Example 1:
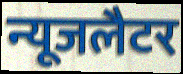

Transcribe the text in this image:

न्यूजलैटर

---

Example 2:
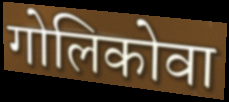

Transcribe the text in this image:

गोलिकोवा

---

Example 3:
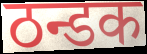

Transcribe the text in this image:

ठन्डक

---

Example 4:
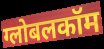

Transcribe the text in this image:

ग्लोबलकॉम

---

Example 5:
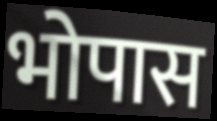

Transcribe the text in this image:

भोपास